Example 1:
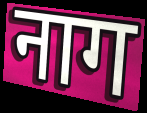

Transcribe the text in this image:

नाग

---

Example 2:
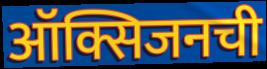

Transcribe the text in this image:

ऑक्सिजनची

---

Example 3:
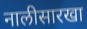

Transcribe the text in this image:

नालीसारखा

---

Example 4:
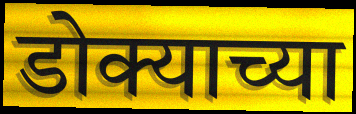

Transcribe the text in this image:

डोक्याच्या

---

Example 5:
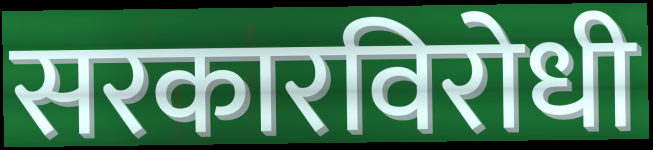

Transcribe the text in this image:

सरकारविरोधी